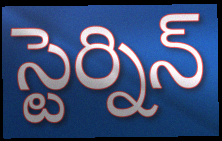
స్టెర్నిన్